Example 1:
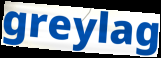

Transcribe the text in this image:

greylag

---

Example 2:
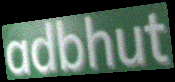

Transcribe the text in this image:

adbhut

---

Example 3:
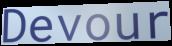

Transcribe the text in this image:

Devour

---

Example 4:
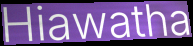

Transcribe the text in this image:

Hiawatha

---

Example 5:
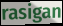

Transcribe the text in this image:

rasigan